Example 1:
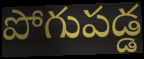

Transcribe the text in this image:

పోగుపడ్డ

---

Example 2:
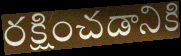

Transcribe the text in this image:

రక్షించడానికి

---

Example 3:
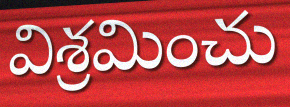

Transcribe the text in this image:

విశ్రమించు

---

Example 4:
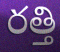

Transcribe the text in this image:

రత్తి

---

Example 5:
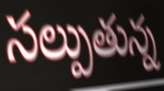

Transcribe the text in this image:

సల్పుతున్న